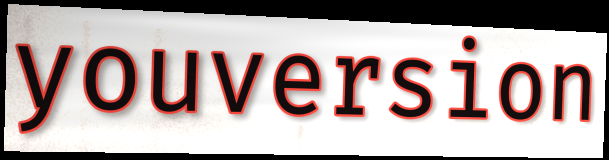
youversion